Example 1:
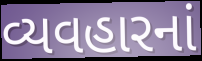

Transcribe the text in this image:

વ્યવહારનાં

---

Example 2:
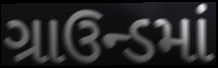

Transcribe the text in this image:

ગ્રાઉન્ડમાં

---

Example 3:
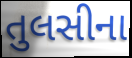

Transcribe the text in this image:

તુલસીના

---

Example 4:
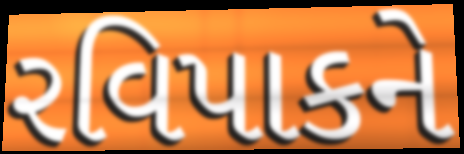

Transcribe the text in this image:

રવિપાકને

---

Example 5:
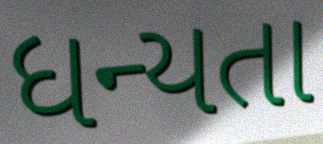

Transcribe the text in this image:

ધન્યતા